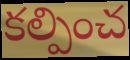
కల్పించ